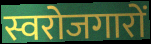
स्वरोजगारों